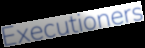
Executioners